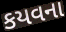
કયવના